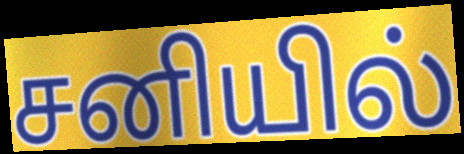
சனியில்